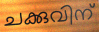
ചക്കുവിന്